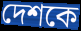
দেশকে